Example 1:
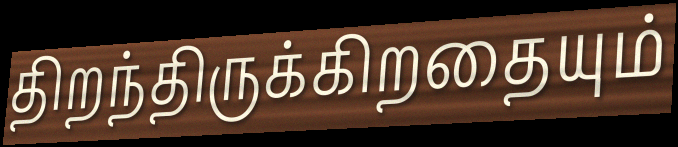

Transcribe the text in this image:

திறந்திருக்கிறதையும்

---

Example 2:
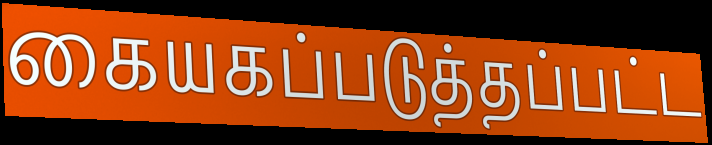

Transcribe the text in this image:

கையகப்படுத்தப்பட்ட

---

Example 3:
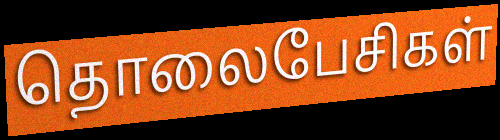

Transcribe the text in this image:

தொலைபேசிகள்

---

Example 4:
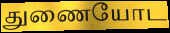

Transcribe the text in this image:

துணையோட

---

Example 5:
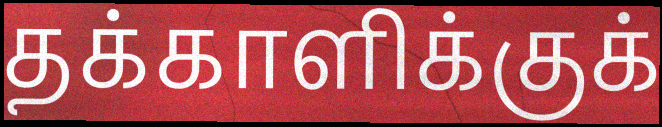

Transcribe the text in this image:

தக்காளிக்குக்